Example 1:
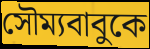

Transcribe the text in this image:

সৌম্যবাবুকে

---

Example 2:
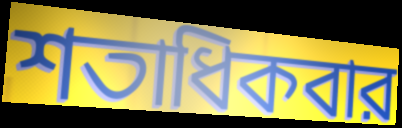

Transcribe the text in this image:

শতাধিকবার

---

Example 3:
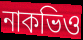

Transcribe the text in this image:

নাকভিও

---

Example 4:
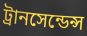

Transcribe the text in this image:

ট্রানসেন্ডেন্স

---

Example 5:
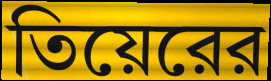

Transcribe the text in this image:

তিয়েরের